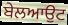
ਬੇਲਆਉਟ